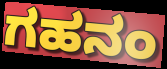
ಗಹನಂ